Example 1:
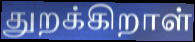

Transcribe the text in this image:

துறக்கிறாள்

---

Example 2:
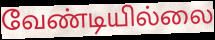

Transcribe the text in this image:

வேண்டியில்லை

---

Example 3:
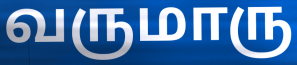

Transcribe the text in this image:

வருமாரு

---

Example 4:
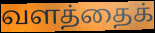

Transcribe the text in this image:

வளத்தைக்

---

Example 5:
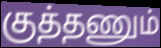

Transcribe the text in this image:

குத்தணும்